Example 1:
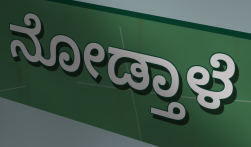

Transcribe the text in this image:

ನೋಡ್ತಾಳೆ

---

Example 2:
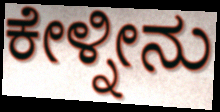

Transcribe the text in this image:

ಕೇಳ್ನೀನು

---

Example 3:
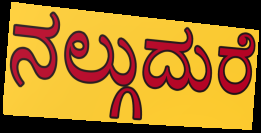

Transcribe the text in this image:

ನಲ್ಗುದುರೆ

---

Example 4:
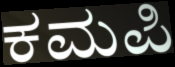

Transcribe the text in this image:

ಕಮಪಿ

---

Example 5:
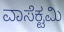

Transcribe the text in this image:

ವಾಸೆಕ್ಟಮಿ